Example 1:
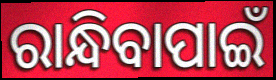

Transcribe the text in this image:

ରାନ୍ଧିବାପାଇଁ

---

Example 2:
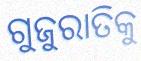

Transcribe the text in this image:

ଗୁଜୁରାତିକୁ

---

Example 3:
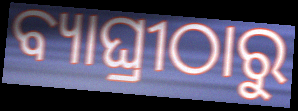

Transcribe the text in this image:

ବ୍ୟାଘ୍ରୀଠାରୁ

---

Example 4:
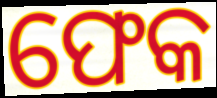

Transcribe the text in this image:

ଫେକ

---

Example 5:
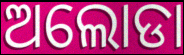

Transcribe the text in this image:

ଅଲୋଡା